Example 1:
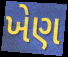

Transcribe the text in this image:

ખેણ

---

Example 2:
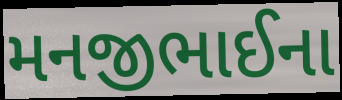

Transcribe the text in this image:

મનજીભાઈના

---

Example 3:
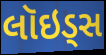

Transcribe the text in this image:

લૉઇડ્સ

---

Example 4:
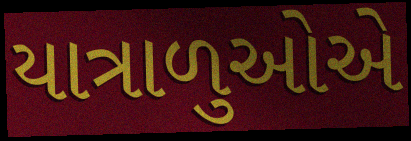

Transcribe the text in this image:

યાત્રાળુઓએ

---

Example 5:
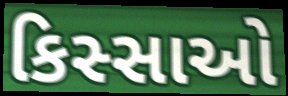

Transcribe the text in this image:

કિસ્સાઓ